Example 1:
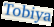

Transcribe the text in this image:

Tobiya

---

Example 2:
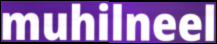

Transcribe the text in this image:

muhilneel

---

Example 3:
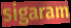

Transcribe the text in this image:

sigaram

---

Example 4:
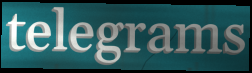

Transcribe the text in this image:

telegrams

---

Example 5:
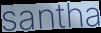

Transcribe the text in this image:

santha